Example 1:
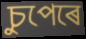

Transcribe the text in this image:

চুপেৰে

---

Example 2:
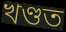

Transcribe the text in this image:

খণ্ডত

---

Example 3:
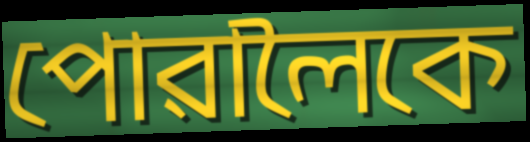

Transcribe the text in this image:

পোৱালৈকে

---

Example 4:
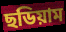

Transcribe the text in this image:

ছডিয়াম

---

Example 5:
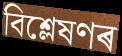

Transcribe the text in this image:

বিশ্লেষণৰ